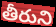
తీరుని